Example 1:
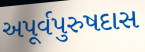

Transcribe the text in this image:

અપૂર્વપુરુષદાસ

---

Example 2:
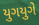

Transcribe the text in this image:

યુગયુગે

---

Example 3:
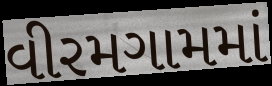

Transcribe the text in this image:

વીરમગામમાં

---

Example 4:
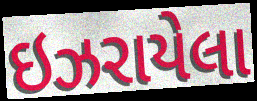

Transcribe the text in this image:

ઇઝરાયેલા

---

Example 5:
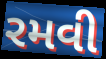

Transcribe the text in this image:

રમવી